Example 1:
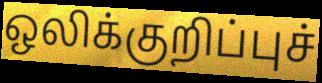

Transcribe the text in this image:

ஒலிக்குறிப்புச்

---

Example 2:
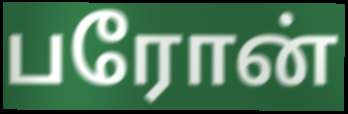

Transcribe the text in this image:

பரோன்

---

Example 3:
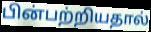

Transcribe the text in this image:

பின்பற்றியதால்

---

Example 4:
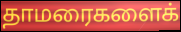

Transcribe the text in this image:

தாமரைகளைக்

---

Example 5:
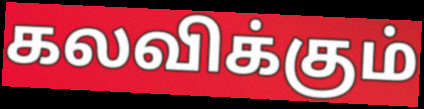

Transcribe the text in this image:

கலவிக்கும்